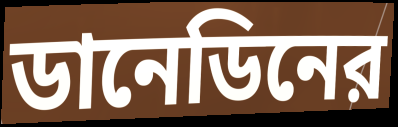
ডানেডিনের